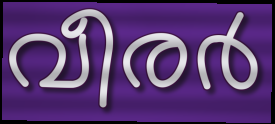
വീരർ